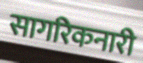
सागरिकनारी